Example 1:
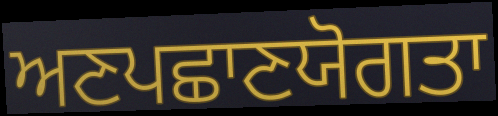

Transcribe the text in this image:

ਅਣਪਛਾਣਯੋਗਤਾ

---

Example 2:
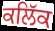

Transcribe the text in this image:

ਕਲਿੱਕ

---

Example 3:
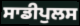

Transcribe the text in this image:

ਸਾਡੀਪੁਲਸ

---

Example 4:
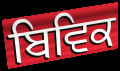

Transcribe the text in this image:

ਬਿਵਿਕ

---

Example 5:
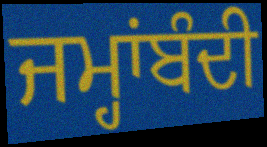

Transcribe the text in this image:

ਜਮ੍ਹਾਂਬੰਦੀ